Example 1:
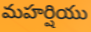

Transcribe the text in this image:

మహర్షియు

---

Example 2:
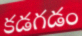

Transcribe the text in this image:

కడగడం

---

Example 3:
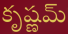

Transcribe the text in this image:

కృష్ణమ్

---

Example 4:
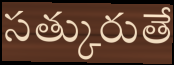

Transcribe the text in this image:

సత్కురుతే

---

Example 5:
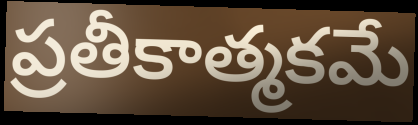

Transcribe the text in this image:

ప్రతీకాత్మకమే